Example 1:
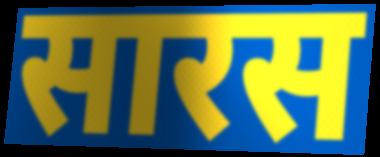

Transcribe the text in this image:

सारस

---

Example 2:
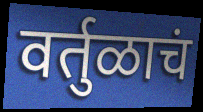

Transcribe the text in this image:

वर्तुळाचं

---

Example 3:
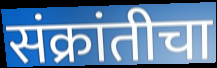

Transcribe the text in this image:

संक्रांतीचा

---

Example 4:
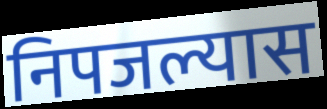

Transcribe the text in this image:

निपजल्यास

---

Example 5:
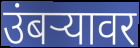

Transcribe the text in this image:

उंबर्‍यावर